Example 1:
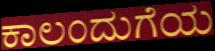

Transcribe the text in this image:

ಕಾಲಂದುಗೆಯ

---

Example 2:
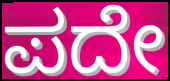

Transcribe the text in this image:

ಪದೇ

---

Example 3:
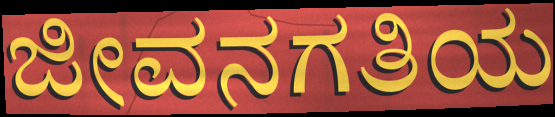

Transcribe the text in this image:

ಜೀವನಗತಿಯ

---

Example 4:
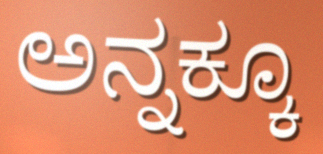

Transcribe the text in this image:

ಅನ್ನಕ್ಕೂ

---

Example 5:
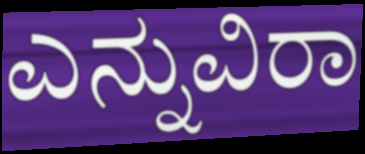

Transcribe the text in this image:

ಎನ್ನುವಿರಾ